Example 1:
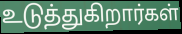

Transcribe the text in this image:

உடுத்துகிறார்கள்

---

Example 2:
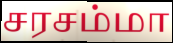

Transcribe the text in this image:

சரசம்மா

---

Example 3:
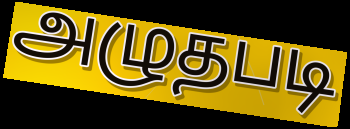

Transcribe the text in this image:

அழுதபடி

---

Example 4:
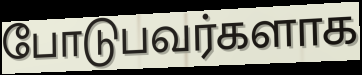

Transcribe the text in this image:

போடுபவர்களாக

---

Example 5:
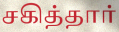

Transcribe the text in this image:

சகித்தார்